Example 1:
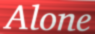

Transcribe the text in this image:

Alone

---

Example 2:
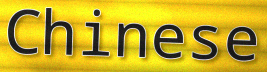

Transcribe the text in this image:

Chinese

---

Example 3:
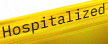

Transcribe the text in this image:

Hospitalized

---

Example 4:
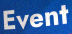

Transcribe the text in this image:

Event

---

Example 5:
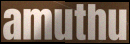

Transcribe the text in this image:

amuthu